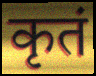
कृतं